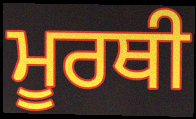
ਮੂਰਥੀ